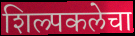
शिल्पकलेचा